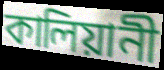
কালিয়ানী